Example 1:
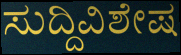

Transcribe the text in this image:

ಸುದ್ದಿವಿಶೇಷ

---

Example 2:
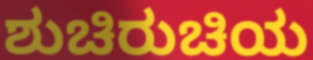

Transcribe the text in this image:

ಶುಚಿರುಚಿಯ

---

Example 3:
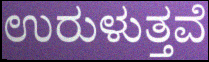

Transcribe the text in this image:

ಉರುಳುತ್ತವೆ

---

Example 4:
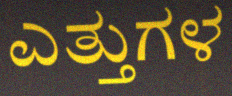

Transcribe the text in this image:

ಎತ್ತುಗಳ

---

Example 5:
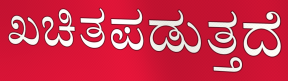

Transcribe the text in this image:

ಖಚಿತಪಡುತ್ತದೆ